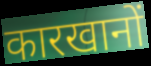
कारखानों